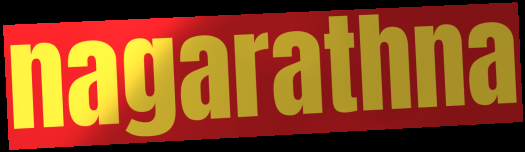
nagarathna